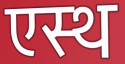
एस्थ